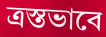
ত্রস্তভাবে